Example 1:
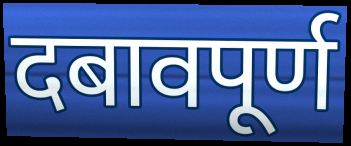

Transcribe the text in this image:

दबावपूर्ण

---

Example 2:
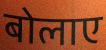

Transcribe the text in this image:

बोलाए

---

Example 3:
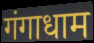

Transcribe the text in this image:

गंगाधाम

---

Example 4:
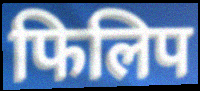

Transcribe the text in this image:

फिलिप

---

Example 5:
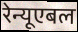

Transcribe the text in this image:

रेन्यूएबल